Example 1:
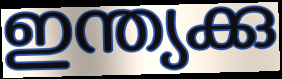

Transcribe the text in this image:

ഇന്ത്യക്കു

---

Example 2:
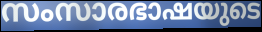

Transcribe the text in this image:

സംസാരഭാഷയുടെ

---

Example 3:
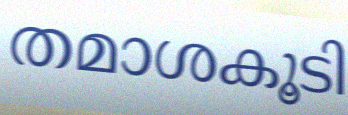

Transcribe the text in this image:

തമാശകൂടി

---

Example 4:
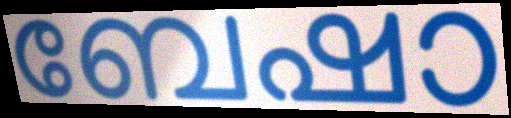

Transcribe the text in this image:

ബേഷാ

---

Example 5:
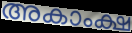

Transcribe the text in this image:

അകാംക്ഷ